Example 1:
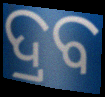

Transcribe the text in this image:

ଦ୍ରବ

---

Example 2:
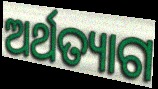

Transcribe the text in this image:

ଅର୍ଥତ୍ୟାଗ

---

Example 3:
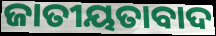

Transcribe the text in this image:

ଜାତୀୟତାବାଦ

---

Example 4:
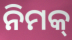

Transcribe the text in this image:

ନିମକ୍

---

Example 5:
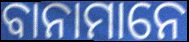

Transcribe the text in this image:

ବାନାମାନେ